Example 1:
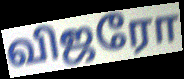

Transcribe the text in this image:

விஜரோ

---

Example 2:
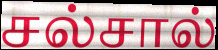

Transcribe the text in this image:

சல்சால்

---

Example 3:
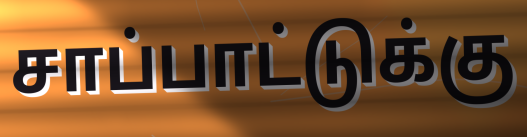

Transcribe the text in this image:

சாப்பாட்டுக்கு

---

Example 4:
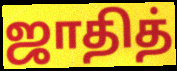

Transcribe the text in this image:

ஜாதித்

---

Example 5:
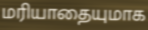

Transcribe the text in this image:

மரியாதையுமாக